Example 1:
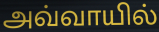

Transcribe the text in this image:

அவ்வாயில்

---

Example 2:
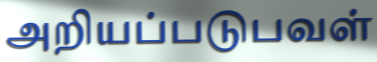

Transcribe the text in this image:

அறியப்படுபவள்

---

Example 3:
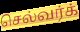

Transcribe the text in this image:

செல்வர்க்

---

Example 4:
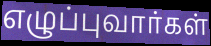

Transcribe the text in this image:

எழுப்புவார்கள்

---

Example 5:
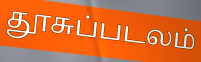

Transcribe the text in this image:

தூசுப்படலம்